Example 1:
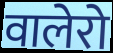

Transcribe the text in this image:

वालेरो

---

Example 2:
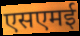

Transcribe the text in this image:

एसएमई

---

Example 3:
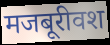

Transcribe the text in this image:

मजबूरीवश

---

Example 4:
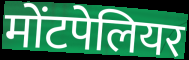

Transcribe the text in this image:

मोंटपेलियर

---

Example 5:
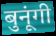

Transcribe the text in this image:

बुनूंगी